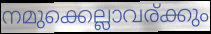
നമുക്കെല്ലാവര്ക്കും